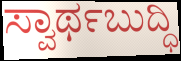
ಸ್ವಾರ್ಥಬುದ್ಧಿ